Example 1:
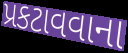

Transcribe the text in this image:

પ્રકટાવવાના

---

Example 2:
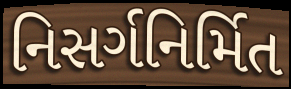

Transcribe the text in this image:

નિસર્ગનિર્મિત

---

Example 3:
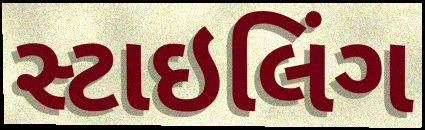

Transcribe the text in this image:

સ્ટાઇલિંગ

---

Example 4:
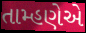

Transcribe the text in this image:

તામ્હણેએ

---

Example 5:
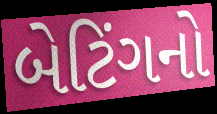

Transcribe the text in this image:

બેટિંગનો